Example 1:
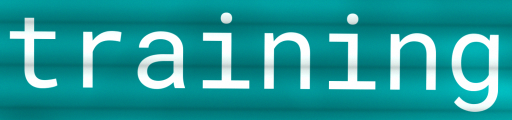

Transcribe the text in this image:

training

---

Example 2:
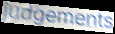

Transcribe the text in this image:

judgements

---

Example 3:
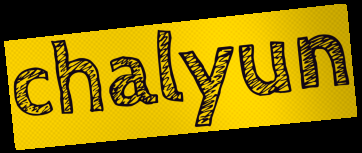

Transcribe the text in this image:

chalyun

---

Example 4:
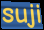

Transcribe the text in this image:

suji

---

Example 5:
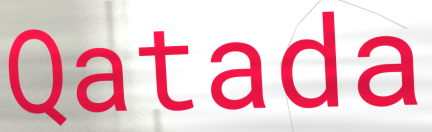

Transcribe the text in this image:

Qatada